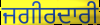
ਜਗੀਰਦਾਰੀ